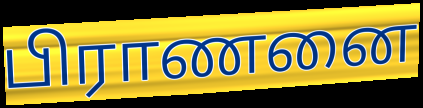
பிராணனை